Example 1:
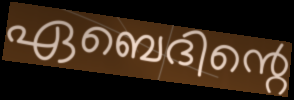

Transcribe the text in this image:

ഏബെദിന്റെ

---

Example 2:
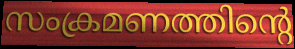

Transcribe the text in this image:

സംക്രമണത്തിന്റെ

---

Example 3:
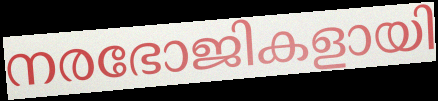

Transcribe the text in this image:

നരഭോജികളായി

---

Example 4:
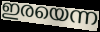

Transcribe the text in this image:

ഇരയെന്ന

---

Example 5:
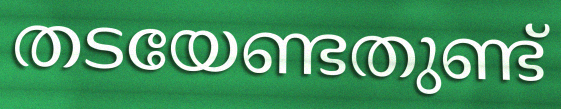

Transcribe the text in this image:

തടയേണ്ടതുണ്ട്